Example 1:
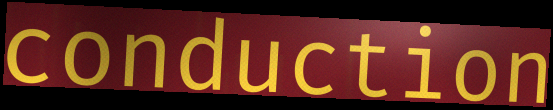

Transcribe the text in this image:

conduction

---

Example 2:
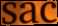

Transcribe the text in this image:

sac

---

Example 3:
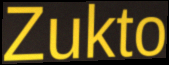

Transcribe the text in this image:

Zukto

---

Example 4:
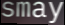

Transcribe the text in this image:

smay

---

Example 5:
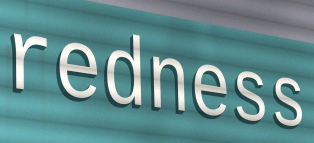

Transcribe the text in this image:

redness